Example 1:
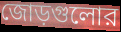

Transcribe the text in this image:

জোড়গুলোর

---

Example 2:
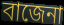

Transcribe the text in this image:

বাজেনা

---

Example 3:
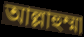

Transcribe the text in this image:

আল্লাহুম্মা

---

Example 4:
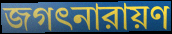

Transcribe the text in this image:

জগৎনারায়ণ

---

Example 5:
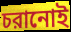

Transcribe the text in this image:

চরানোই